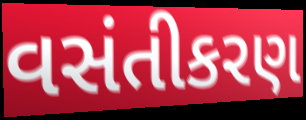
વસંતીકરણ